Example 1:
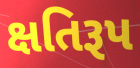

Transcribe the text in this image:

ક્ષતિરૂપ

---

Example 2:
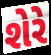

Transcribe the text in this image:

શેરે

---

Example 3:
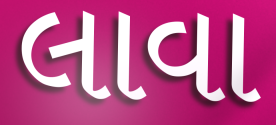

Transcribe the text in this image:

લાવા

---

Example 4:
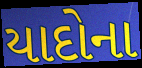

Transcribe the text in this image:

યાદોના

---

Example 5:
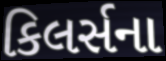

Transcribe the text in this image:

કિલર્સના